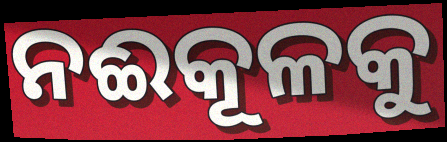
ନଈକୂଳକୁ